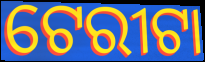
ଟେରୀଟା